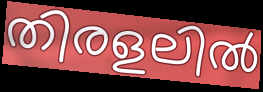
തിരളലിൽ